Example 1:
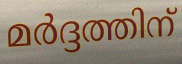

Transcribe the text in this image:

മർദ്ദത്തിന്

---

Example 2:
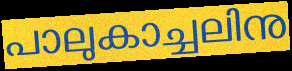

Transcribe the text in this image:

പാലുകാച്ചലിനു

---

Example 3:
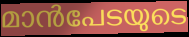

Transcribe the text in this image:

മാൻപേടയുടെ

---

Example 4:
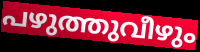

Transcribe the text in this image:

പഴുത്തുവീഴും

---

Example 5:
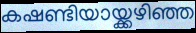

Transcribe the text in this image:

കഷണ്ടിയായ്ക്കഴിഞ്ഞ